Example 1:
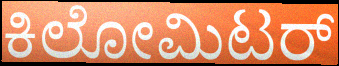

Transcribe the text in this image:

ಕಿಲೋಮಿಟರ್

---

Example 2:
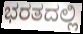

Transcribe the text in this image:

ಭರತದಲ್ಲಿ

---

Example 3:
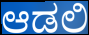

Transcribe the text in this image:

ಆಡಲಿ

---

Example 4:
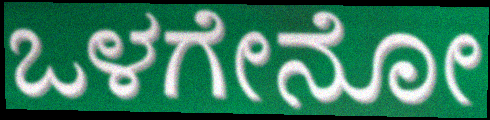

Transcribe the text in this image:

ಒಳಗೇನೋ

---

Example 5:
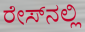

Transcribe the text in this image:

ರೇಸ್‍ನಲ್ಲಿ